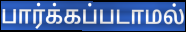
பார்க்கப்படாமல்